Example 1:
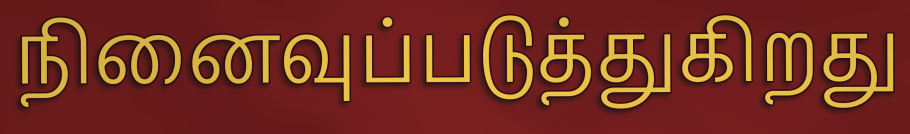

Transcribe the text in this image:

நினைவுப்படுத்துகிறது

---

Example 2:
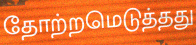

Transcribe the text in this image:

தோற்றமெடுத்தது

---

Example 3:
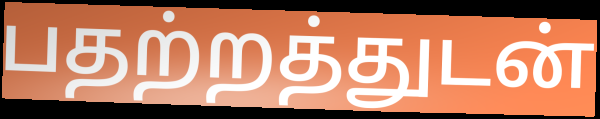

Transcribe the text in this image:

பதற்றத்துடன்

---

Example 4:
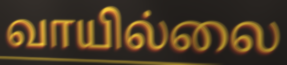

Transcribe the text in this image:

வாயில்லை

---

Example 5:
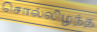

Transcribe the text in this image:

சொல்லிழந்த